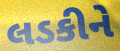
લડકીને